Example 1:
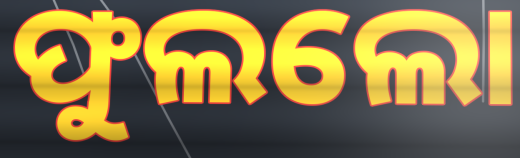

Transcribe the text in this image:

ଫୁଲଲୋ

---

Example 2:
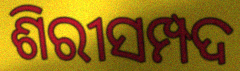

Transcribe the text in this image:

ଶିରୀସମ୍ପଦ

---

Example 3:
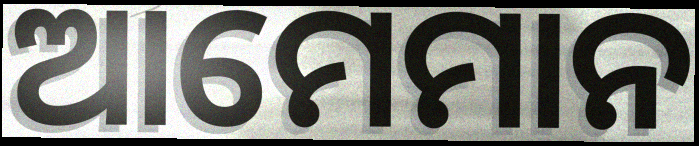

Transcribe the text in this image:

ଆମେମାନ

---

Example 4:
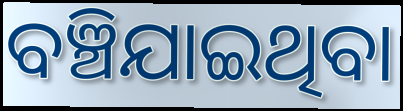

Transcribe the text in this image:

ବଞ୍ଚିଯାଇଥିବା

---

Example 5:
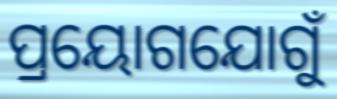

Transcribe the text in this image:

ପ୍ରୟୋଗଯୋଗୁଁ